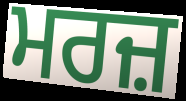
ਮਰਜ਼